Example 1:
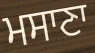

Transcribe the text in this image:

ਮਸਾਣਾ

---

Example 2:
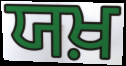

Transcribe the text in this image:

ਯਖ਼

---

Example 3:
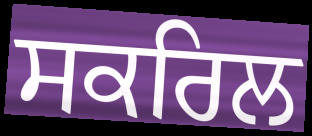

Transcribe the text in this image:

ਸਕਰਿਲ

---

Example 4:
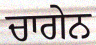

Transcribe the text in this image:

ਚਾਗੇਨ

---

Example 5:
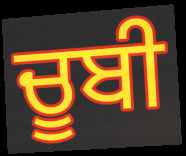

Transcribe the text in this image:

ਚੂਬੀ